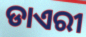
ଡାଏରୀ